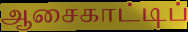
ஆசைகாட்டிப்